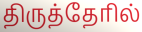
திருத்தேரில்